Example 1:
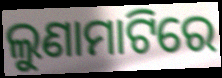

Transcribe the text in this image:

ଲୁଣାମାଟିରେ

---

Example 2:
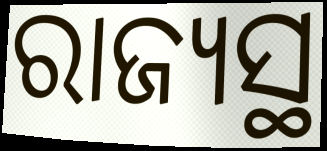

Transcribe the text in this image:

ରାଜ୍ୟସ୍ଥ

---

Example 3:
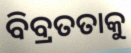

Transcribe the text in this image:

ବିବ୍ରତତାକୁ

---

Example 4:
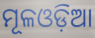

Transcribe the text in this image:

ମୂଳଓଡ଼ିଆ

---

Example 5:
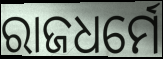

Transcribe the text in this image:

ରାଜଧର୍ମେ